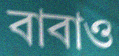
বাবাও